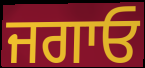
ਜਗਾਓ